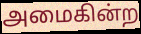
அமைகின்ற